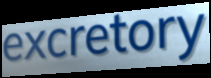
excretory